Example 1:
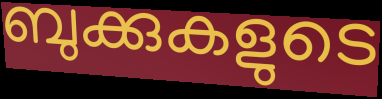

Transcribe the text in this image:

ബുക്കുകളുടെ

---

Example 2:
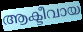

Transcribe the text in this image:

ആക്ടീവായ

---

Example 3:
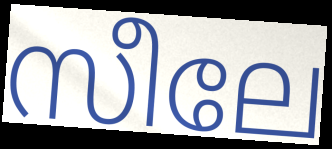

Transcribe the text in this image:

സീലേ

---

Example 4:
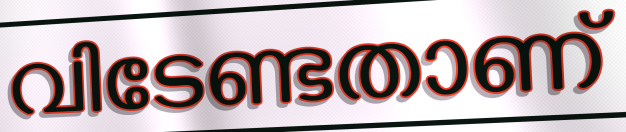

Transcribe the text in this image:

വിടേണ്ടതാണ്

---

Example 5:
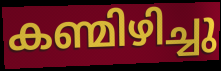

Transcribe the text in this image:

കണ്മിഴിച്ചു